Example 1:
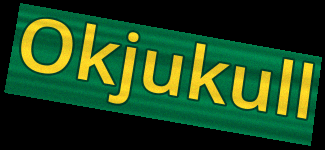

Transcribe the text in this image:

Okjukull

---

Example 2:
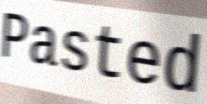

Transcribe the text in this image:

Pasted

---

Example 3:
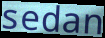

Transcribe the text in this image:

sedan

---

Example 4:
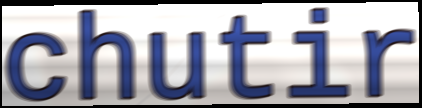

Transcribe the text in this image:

chutir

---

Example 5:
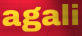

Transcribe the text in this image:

agali